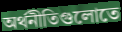
অর্থনীতিগুলোতে